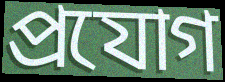
প্ৰযোগ